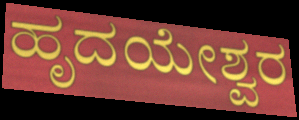
ಹೃದಯೇಶ್ವರ